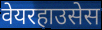
वेयरहाउसेस